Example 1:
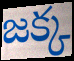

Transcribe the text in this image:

జక్క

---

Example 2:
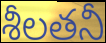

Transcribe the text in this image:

శీలతనీ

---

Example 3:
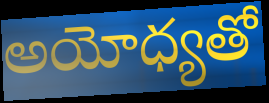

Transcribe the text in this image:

అయోధ్యతో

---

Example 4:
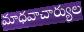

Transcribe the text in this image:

మాధవాచార్యుల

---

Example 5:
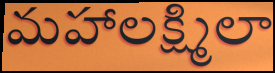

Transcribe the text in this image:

మహాలక్ష్మిలా